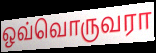
ஒவ்வொருவரா